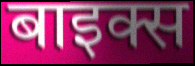
बाइक्स